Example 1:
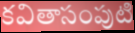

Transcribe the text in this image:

కవితాసంపుటి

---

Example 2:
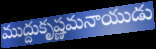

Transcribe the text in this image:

ముద్దుకృష్ణమనాయుడు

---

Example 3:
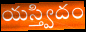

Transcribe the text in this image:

యస్త్విదం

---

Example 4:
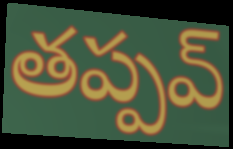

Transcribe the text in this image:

తప్పవ్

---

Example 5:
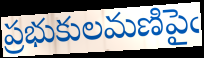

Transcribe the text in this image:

ప్రభుకులమణిపైఁ